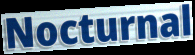
Nocturnal